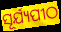
ସୂର୍ଯ୍ୟପୀଠ